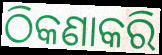
ଠିକଣାକରି